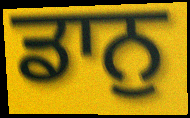
ਡਾਨੁ